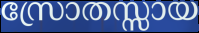
സ്രോതസ്സായ